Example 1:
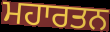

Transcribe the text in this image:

ਮਹਾਰਤਨ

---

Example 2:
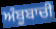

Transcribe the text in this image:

ਅੰਬੂਬਾਚੀ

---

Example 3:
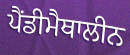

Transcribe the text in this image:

ਪੈਂਡੀਮੈਥਾਲੀਨ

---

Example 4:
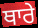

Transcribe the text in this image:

ਥਾਰੇ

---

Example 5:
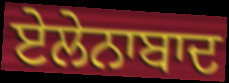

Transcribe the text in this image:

ਏਲੇਨਾਬਾਦ